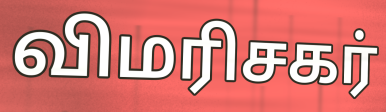
விமரிசகர்